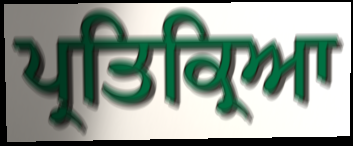
ਪ੍ਰਤਿਕ੍ਰਿਆ